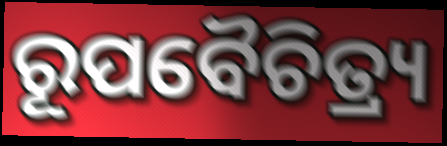
ରୂପବୈଚିତ୍ର୍ୟ